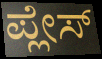
ಪ್ಲೇಸ್